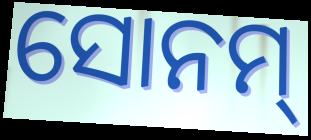
ସୋନମ୍